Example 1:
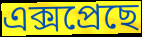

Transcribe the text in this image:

এক্সপ্ৰেছে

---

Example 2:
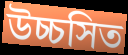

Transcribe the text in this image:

উচ্চসিত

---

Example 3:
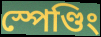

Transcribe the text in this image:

স্পেণ্ডিং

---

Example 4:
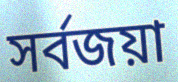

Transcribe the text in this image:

সৰ্বজয়া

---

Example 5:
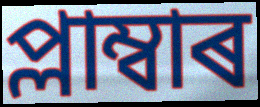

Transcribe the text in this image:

প্লাম্বাৰ